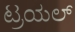
ಟ್ರಯಲ್